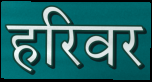
हरिवर